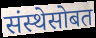
संस्थेसोबत